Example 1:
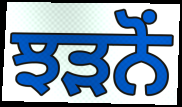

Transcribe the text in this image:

ਝੜਨੋਂ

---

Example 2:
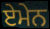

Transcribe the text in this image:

ਏਮੇਨ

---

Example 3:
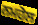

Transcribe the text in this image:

ਨਮਹੋਲ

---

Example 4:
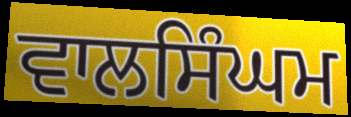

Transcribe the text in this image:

ਵਾਲਸਿੰਘਮ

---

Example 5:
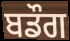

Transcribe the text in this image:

ਬਡੌਗ